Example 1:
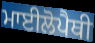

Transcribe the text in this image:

ਮਾਈਲੋਪੈਥੀ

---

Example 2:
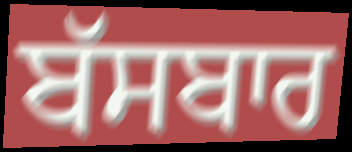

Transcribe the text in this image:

ਬੱਸਬਾਰ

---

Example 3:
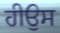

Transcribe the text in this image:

ਹੀਉਸ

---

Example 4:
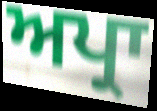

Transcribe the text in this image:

ਅਪ੍ਰਾ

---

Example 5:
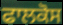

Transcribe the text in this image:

ਫਾਲਕੋਸ